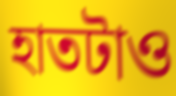
হাতটাও